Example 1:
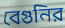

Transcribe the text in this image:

বেগুনির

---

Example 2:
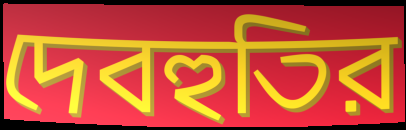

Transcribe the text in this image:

দেবহুতির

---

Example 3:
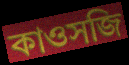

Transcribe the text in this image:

কাওসজি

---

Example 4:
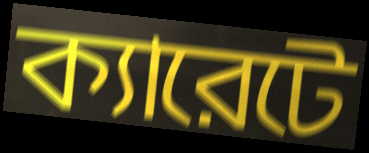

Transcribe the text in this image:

ক্যারেটে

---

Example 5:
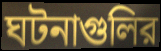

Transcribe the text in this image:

ঘটনাগুলির